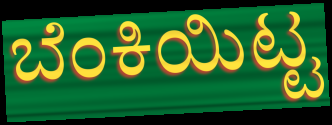
ಬೆಂಕಿಯಿಟ್ಟ